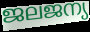
ജലജന്യ